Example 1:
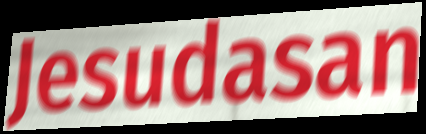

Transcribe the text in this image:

Jesudasan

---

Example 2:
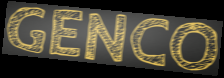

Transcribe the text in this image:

GENCO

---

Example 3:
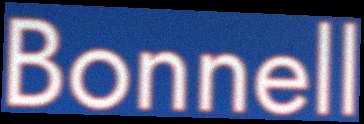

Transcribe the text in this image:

Bonnell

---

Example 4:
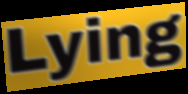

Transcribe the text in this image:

Lying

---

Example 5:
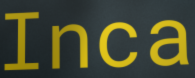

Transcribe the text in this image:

Inca